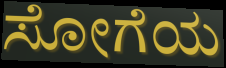
ಸೋಗೆಯ